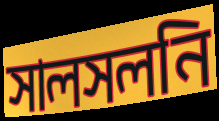
সালসলনি